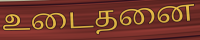
உடைதனை